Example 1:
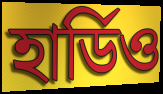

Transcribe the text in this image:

হার্ডিও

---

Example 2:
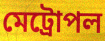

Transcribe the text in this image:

মেট্রোপল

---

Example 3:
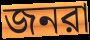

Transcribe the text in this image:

জনরা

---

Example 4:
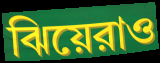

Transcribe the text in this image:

ঝিয়েরাও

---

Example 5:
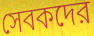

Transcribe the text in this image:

সেবকদের